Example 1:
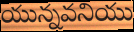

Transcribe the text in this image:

యున్నవనియు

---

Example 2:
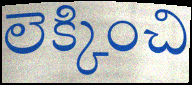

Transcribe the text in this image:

లెక్కించి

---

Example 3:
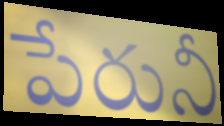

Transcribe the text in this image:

పేరునీ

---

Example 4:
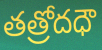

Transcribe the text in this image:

తత్రోదధౌ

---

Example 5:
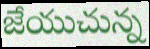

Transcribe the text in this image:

జేయుచున్న